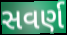
સવર્ણ